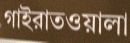
গাইরাতওয়ালা